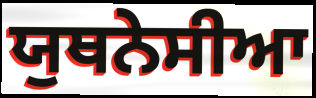
ਯੁਥਨੇਸੀਆ